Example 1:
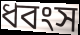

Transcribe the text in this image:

ধবংস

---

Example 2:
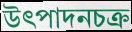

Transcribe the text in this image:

উৎপাদনচক্র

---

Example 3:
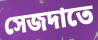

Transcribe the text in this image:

সেজদাতে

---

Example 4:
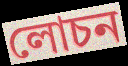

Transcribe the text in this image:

লোচন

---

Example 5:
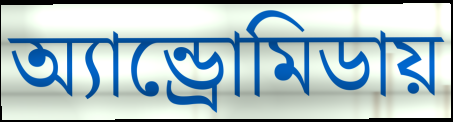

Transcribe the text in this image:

অ্যান্ড্রোমিডায়